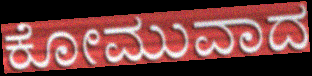
ಕೋಮುವಾದ